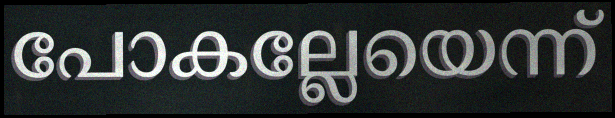
പോകല്ലേയെന്ന്